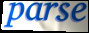
parse